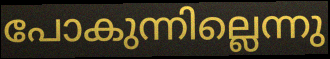
പോകുന്നില്ലെന്നു